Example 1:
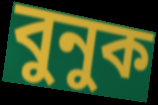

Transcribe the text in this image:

বুনুক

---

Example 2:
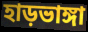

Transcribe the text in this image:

হাড়ভাঙ্গা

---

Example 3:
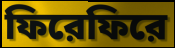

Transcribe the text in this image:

ফিরেফিরে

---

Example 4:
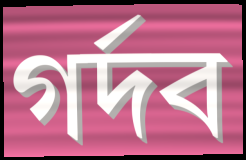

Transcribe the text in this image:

গর্দব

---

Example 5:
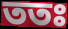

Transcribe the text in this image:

ততঃ